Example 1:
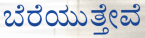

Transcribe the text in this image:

ಬೆರೆಯುತ್ತೇವೆ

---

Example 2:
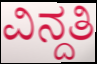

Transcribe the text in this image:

ವಿನ್ದತಿ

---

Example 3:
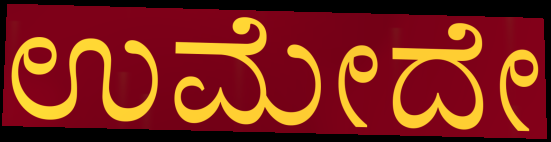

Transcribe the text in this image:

ಉಮೇದೇ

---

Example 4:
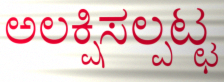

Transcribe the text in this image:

ಅಲಕ್ಷಿಸಲ್ಪಟ್ಟ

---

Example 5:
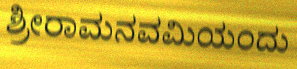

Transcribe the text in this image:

ಶ್ರೀರಾಮನವಮಿಯಂದು